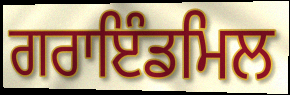
ਗਰਾਇੰਡਮਿਲ